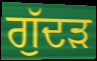
ਗੁੱਦੜ